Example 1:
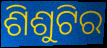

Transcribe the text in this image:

ଶିଶୁଟିର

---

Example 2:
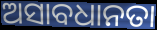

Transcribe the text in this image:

ଅସାବଧାନତା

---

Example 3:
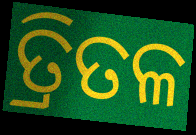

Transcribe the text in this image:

ତ୍ରିତଳ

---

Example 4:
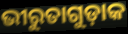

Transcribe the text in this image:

ଭୀରୁତାଗୁଡ଼ାକ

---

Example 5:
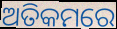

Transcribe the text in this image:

ଅତିକମରେ